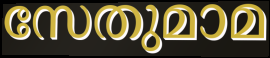
സേതുമാമ